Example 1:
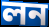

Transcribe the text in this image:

লন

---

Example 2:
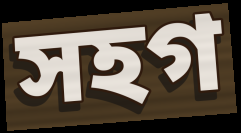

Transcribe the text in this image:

সহগ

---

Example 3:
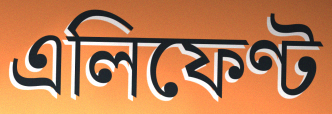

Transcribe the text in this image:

এলিফেণ্ট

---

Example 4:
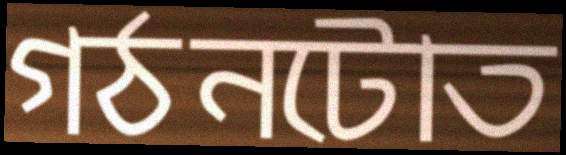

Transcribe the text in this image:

গঠনটোত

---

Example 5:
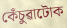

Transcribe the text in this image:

কেঁচুৱাটোক